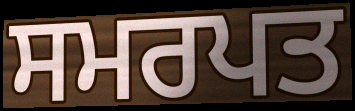
ਸਮਰਪਤ